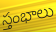
స్తంభాలు